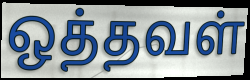
ஒத்தவள்